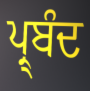
ਪ੍ਰ੍ਬੰਦ